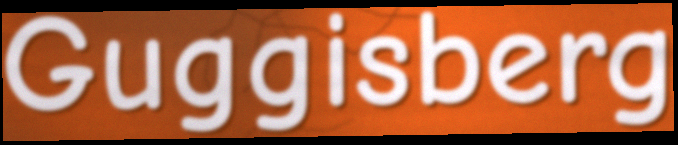
Guggisberg